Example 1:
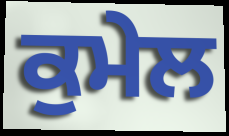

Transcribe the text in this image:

ਕੁਮੇਲ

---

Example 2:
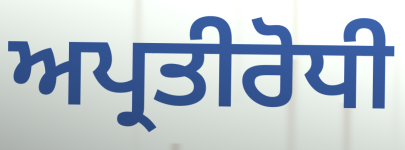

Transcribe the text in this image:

ਅਪ੍ਰਤੀਰੋਧੀ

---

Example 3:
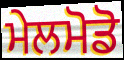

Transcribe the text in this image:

ਮੇਲਮੋਡੋ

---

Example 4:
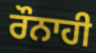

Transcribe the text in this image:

ਰੌਨਾਹੀ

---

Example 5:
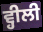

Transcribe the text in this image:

ਵ੍ਹੀਲੀ